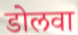
डोलवा